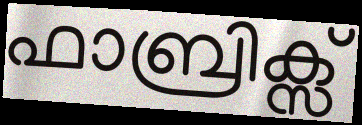
ഫാബ്രിക്സ്